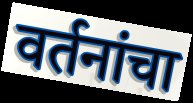
वर्तनांचा